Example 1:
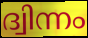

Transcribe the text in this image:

ദ്വിന്നം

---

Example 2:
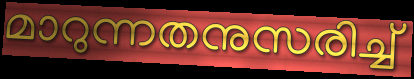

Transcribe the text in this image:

മാറുന്നതനുസരിച്ച്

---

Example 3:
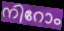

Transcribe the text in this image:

നിറോം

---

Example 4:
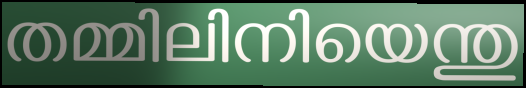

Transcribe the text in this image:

തമ്മിലിനിയെന്തു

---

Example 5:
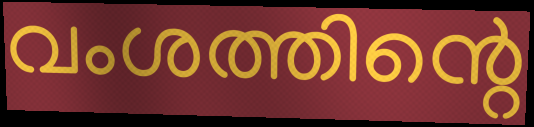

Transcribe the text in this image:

വംശത്തിന്റെ